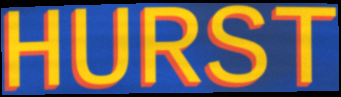
HURST